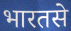
भारतसे